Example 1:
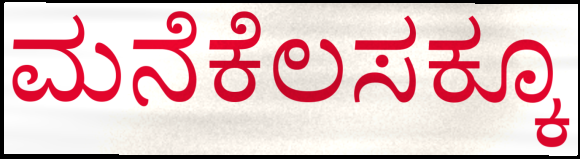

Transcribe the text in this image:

ಮನೆಕೆಲಸಕ್ಕೂ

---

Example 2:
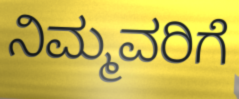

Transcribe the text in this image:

ನಿಮ್ಮವರಿಗೆ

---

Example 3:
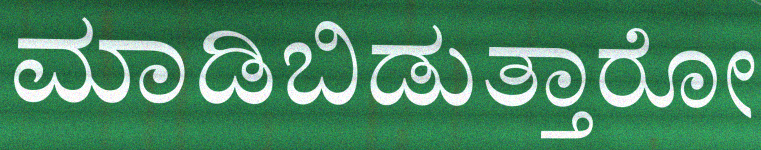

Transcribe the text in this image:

ಮಾಡಿಬಿಡುತ್ತಾರೋ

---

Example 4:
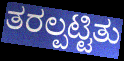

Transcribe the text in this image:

ತರಲ್ಪಟ್ಟಿತು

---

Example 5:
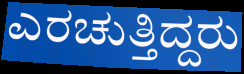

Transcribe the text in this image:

ಎರಚುತ್ತಿದ್ದರು